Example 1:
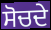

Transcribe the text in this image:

ਸੋਚਦੇ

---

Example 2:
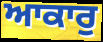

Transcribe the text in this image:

ਆਕਾਰੁ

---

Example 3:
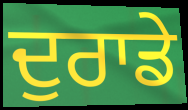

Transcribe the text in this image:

ਦੁਰਾਡੇ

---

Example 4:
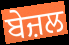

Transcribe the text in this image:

ਬੇਜ਼ਲ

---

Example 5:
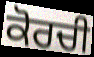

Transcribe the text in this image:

ਕੋਰਚੀ